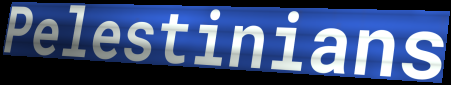
Pelestinians